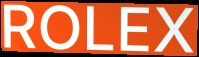
ROLEX